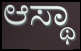
ಆಸ್ಥಾ